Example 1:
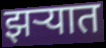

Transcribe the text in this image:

झर्‍यात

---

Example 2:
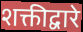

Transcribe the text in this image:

शक्तीद्वारे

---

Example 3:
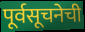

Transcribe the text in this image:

पूर्वसूचनेची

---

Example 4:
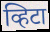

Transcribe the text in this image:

व्हिटा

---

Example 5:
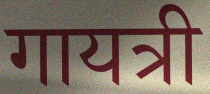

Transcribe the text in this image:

गायत्री